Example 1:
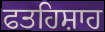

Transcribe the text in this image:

ਫਤਹਿਸ਼ਾਹ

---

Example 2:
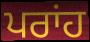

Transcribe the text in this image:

ਪਰਾਂਹ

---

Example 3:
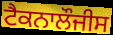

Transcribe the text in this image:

ਟੈਕਨਾਲੌਜੀਸ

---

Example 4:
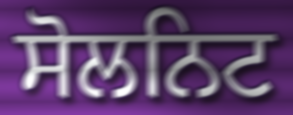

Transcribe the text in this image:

ਸੋਲਨਿਟ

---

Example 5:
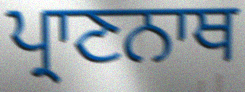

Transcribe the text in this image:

ਪ੍ਰਾਣਨਾਥ